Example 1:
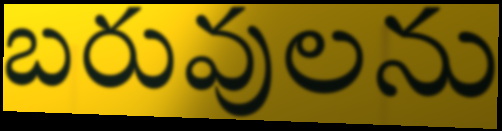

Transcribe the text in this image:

బరువులను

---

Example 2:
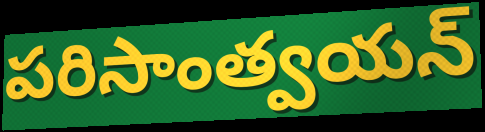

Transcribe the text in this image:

పరిసాంత్వయన్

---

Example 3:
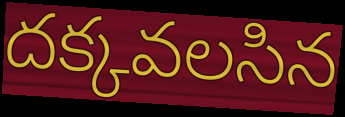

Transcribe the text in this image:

దక్కవలసిన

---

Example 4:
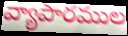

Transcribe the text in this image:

వ్యాపారముల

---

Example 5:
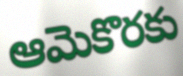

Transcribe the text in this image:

ఆమెకొరకు